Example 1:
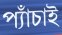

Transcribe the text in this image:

প্যাঁচাই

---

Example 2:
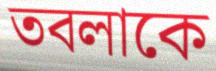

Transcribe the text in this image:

তবলাকে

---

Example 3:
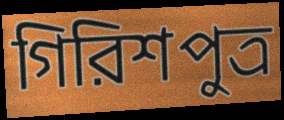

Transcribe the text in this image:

গিরিশপুত্র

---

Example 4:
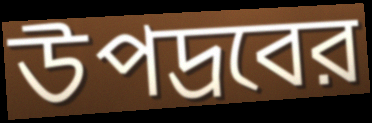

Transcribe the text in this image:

উপদ্রবের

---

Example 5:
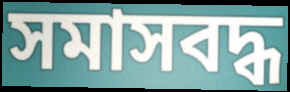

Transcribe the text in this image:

সমাসবদ্ধ